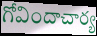
గోవిందాచార్య